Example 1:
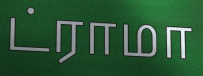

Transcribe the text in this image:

ட்ராமா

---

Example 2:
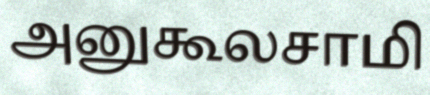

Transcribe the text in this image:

அனுகூலசாமி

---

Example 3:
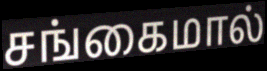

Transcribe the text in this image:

சங்கைமால்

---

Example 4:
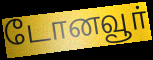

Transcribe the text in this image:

டோனவூர்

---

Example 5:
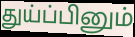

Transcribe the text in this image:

துய்ப்பினும்